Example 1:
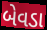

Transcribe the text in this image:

બેવડા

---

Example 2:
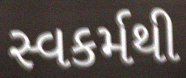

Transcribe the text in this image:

સ્વકર્મથી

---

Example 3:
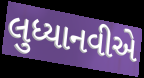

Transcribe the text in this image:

લુધ્યાનવીએ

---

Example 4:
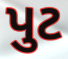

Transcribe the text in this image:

પુટ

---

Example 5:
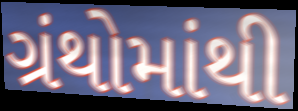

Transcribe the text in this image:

ગ્રંથોમાંથી